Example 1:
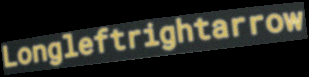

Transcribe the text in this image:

Longleftrightarrow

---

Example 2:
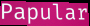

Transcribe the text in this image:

Papular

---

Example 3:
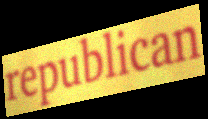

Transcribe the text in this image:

republican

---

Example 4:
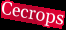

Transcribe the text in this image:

Cecrops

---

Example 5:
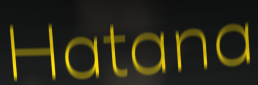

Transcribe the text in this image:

Hatana